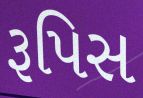
રૂપિસ